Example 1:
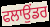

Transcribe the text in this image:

ਫਲਾਉਂਡਰ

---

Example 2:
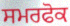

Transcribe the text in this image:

ਸਮਰਫੋਕ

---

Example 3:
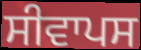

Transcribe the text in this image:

ਸੀਵਾਪਸ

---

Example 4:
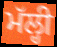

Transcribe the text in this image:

ਮੱਲ੍ਹੀ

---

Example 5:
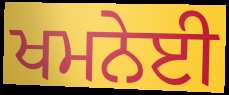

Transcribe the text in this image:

ਖਮਨੇਈ